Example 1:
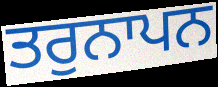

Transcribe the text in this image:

ਤਰੁਨਾਪਨ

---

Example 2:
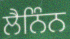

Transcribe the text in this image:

ਲੈਨਿੰਨ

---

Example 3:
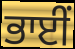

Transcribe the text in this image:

ਭਾਈੰ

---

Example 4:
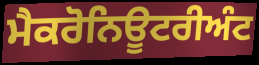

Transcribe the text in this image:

ਮੈਕਰੋਨਿਊਟਰੀਅੰਟ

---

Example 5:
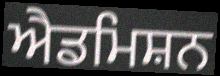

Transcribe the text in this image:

ਐਡਮਿਸ਼ਨ